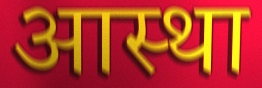
आस्था